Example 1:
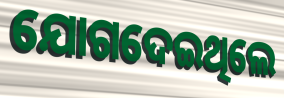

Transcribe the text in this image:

ଯୋଗଦେଇଥିଲେ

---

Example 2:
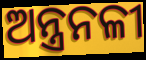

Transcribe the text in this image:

ଅନ୍ତ୍ରନଳୀ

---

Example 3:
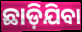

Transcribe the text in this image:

ଛାଡ଼ିଯିବା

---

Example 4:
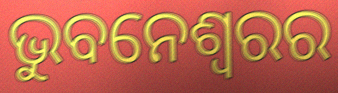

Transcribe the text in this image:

ଭୁବନେଶ୍ବରର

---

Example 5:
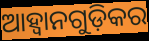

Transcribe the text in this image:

ଆହ୍ୱାନଗୁଡ଼ିକର